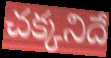
చక్కనిదే